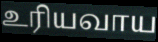
உரியவாய